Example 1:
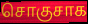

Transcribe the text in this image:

சொகுசாக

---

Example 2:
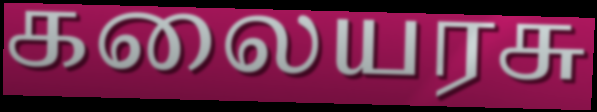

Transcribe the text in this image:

கலையரசு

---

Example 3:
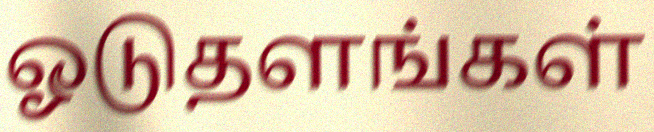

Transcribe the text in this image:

ஓடுதளங்கள்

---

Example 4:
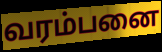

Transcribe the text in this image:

வரம்பனை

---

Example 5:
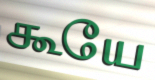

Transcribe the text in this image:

கூயே